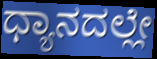
ಧ್ಯಾನದಲ್ಲೇ